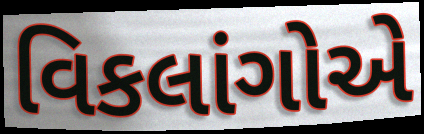
વિકલાંગોએ